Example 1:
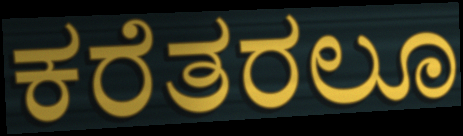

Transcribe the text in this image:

ಕರೆತರಲೂ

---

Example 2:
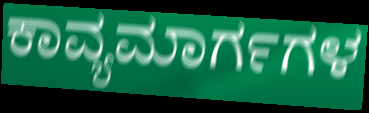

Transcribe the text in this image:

ಕಾವ್ಯಮಾರ್ಗಗಳ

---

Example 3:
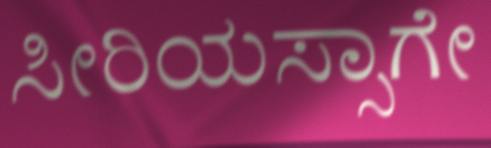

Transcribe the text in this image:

ಸೀರಿಯಸ್ಸಾಗೇ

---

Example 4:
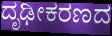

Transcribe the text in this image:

ದೃಢೀಕರಣದ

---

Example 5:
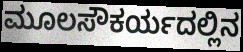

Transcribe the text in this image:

ಮೂಲಸೌಕರ್ಯದಲ್ಲಿನ